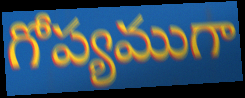
గోప్యముగా